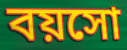
বয়সো